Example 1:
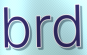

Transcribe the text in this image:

brd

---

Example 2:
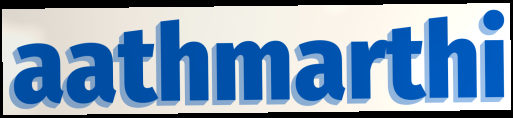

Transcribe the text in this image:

aathmarthi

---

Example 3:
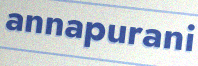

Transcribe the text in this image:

annapurani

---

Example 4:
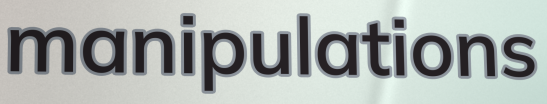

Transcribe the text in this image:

manipulations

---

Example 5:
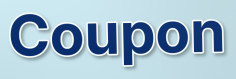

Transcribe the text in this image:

Coupon